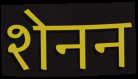
शेनन